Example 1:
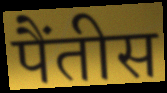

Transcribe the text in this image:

पैंतीस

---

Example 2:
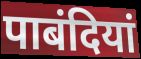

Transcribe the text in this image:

पाबंदियां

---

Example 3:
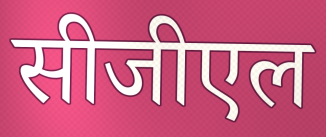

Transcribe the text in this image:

सीजीएल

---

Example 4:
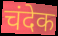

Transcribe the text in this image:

चंदेक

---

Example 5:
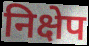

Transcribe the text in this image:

निक्षेप